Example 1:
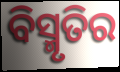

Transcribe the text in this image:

ବିସ୍ମୃତିର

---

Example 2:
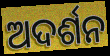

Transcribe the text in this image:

ଅଦର୍ଶନ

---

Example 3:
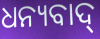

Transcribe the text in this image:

ଧନ୍ୟବାଦ୍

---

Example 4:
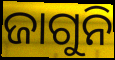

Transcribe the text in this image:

ଜାଗୁନି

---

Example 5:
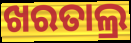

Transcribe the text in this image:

ଖରତାଲ୍ର